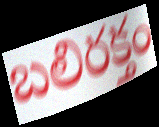
బలిరక్తం